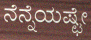
ನೆನ್ನೆಯಷ್ಟೇ